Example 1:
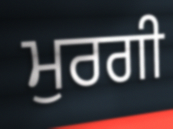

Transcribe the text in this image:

ਮੁਰਗੀ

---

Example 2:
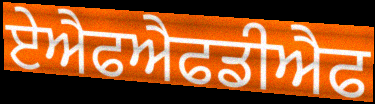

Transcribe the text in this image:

ਏਐਫਐਫਡੀਐਫ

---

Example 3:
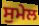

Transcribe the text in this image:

ਸੁਮੇਲ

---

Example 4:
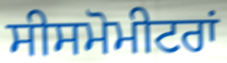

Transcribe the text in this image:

ਸੀਸਮੋਮੀਟਰਾਂ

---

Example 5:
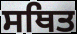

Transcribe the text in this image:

ਸਥਿਤ